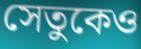
সেতুকেও